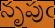
నృపుఁ